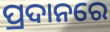
ପ୍ରଦାନରେ